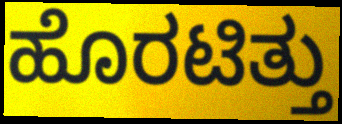
ಹೊರಟಿತ್ತು